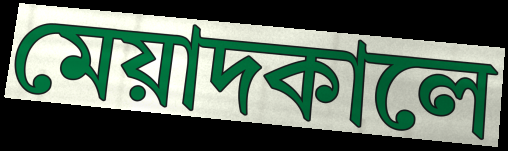
মেয়াদকালে